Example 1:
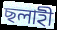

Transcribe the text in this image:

ছলাহী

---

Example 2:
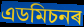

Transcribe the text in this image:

এডমিচনৰ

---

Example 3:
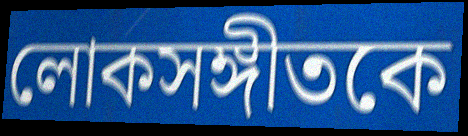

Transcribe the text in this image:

লোকসঙ্গীতকে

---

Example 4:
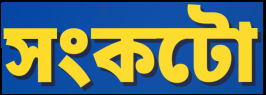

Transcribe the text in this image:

সংকটো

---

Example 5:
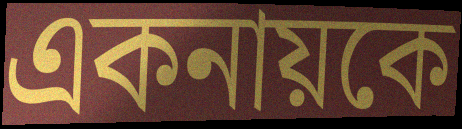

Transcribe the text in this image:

একনায়কে